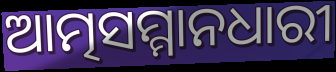
ଆତ୍ମସମ୍ମାନଧାରୀ